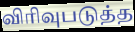
விரிவுபடுத்த